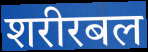
शरीरबल